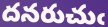
దనరుచుఁ